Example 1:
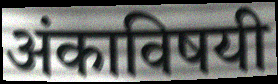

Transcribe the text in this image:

अंकाविषयी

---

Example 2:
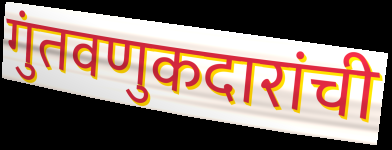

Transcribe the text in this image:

गुंतवणुकदारांची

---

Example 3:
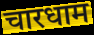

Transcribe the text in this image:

चारधाम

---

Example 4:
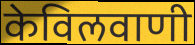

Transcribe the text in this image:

केविलवाणी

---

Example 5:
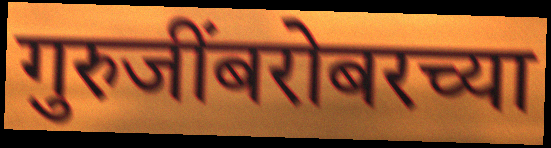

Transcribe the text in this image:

गुरुजींबरोबरच्या